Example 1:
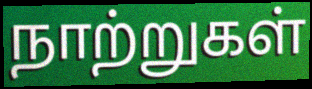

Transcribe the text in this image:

நாற்றுகள்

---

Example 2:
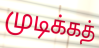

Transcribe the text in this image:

முடிக்கத்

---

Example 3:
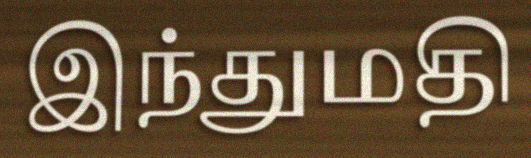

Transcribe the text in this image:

இந்துமதி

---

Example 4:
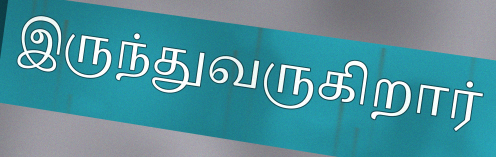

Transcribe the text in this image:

இருந்துவருகிறார்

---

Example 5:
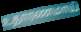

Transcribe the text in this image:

உதாரணமாய்